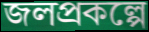
জলপ্রকল্পে